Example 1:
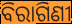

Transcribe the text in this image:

ବିରାଗିଣୀ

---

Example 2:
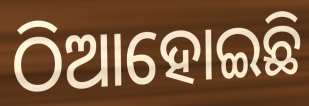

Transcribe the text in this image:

ଠିଆହୋଇଛି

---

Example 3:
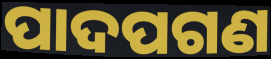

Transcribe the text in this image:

ପାଦପଗଣ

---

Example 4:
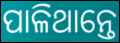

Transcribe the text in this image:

ପାଳିଥାନ୍ତେ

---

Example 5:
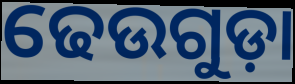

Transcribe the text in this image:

ଢେଉଗୁଡ଼ା